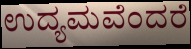
ಉದ್ಯಮವೆಂದರೆ